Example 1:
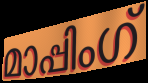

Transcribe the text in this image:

മാപ്പിംഗ്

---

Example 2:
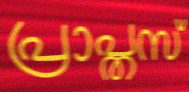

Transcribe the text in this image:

പ്രാപ്തസ്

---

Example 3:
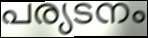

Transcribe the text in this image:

പര്യടനം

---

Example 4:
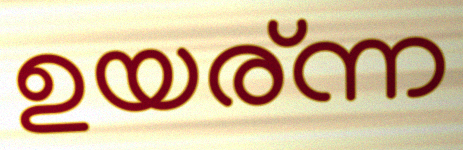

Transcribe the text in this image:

ഉയര്ന്ന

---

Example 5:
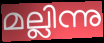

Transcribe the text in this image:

മല്ലിന്നു